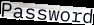
Password